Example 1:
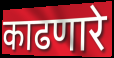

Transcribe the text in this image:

काढणारे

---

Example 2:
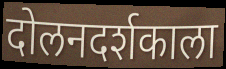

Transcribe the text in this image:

दोलनदर्शकाला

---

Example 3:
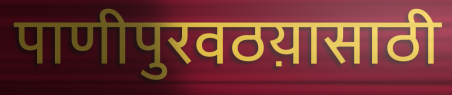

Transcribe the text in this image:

पाणीपुरवठय़ासाठी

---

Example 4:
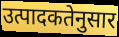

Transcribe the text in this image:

उत्पादकतेनुसार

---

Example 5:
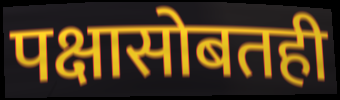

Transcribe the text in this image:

पक्षासोबतही